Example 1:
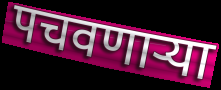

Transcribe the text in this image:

पचवणाऱ्या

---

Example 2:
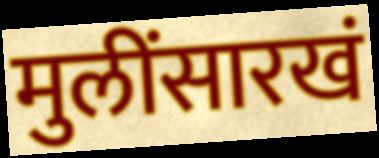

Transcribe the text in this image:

मुलींसारखं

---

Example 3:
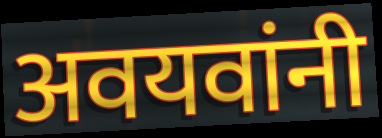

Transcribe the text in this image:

अवयवांनी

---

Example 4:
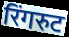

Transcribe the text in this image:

रिंगरुट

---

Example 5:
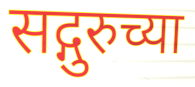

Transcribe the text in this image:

सद्गुरुच्या